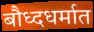
बौध्दधर्मात